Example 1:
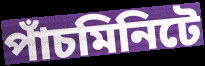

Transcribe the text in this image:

পাঁচমিনিটে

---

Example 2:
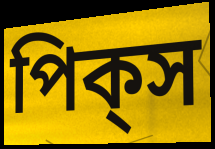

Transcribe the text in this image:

পিক্‌স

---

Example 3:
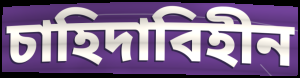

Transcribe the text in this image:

চাহিদাবিহীন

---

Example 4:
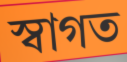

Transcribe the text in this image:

স্বাগত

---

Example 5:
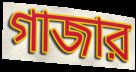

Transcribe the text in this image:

গাজার